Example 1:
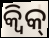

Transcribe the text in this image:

କ୍ୱିକ୍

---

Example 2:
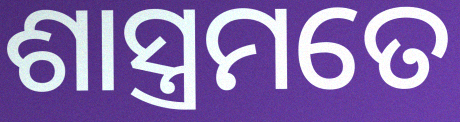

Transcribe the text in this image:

ଶାସ୍ତ୍ରମତେ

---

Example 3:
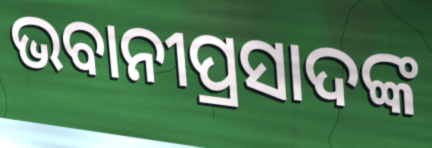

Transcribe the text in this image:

ଭବାନୀପ୍ରସାଦଙ୍କ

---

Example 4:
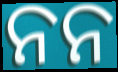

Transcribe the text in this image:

ନନ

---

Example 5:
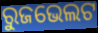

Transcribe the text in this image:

ରୁଜଭେଲଟ